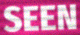
SEEN